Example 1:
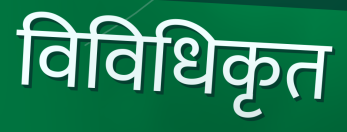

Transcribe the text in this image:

विविधिकृत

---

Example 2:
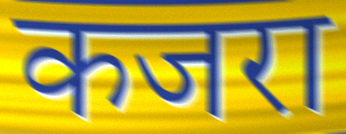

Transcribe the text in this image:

कजरा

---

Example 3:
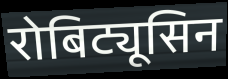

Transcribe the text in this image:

रोबिट्यूसिन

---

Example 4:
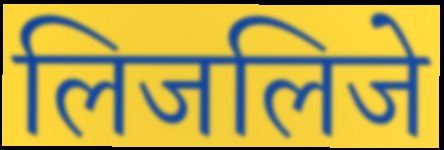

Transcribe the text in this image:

लिजलिजे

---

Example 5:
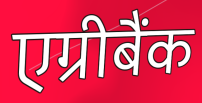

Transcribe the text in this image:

एग्रीबैंक